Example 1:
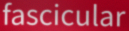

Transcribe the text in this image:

fascicular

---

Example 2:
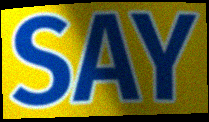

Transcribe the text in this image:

SAY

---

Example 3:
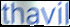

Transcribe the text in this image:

thavil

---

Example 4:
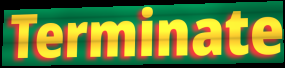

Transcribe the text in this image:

Terminate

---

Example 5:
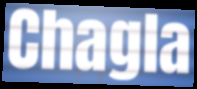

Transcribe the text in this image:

Chagla